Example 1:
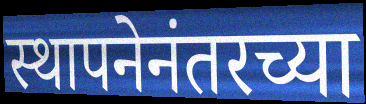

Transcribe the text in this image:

स्थापनेनंतरच्या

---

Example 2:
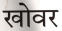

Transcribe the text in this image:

खोवर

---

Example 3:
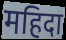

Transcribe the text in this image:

महिदा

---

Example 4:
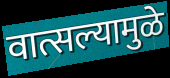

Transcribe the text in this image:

वात्सल्यामुळे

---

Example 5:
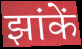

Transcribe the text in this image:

झांकें